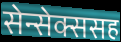
सेन्सेक्ससह